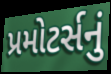
પ્રમોટર્સનું